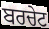
ਬਰਚੇਟ